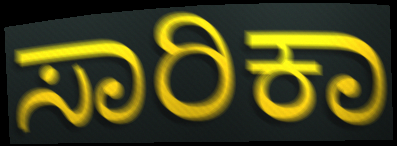
ಸಾರಿಕಾ